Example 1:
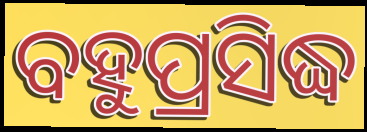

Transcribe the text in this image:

ବହୁପ୍ରସିଦ୍ଧ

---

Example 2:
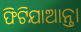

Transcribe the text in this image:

ଫିଟିଯାଆନ୍ତା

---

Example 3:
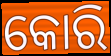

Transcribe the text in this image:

କୋରି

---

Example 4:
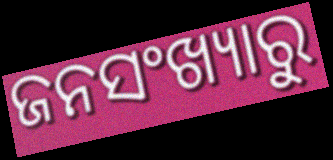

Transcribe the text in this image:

ଜନସଂଖ୍ୟାରୁ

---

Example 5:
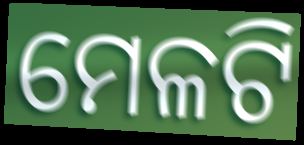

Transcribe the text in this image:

ମେଳଟି